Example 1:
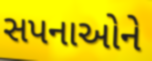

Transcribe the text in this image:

સપનાઓને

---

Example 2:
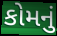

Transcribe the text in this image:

કોમનું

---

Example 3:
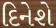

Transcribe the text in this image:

દિનેશે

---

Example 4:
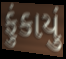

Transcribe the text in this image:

ફુંકાયું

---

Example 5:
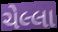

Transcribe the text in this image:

ચેલ્લા